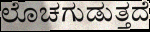
ಲೊಚಗುಡುತ್ತದೆ